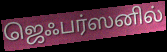
ஜெஃபர்ஸனில்